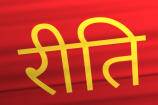
रीति